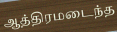
ஆத்திரமடைந்த